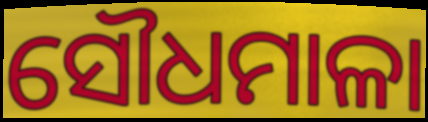
ସୌଧମାଳା